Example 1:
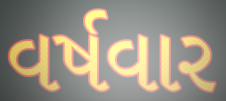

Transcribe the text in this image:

વર્ષવાર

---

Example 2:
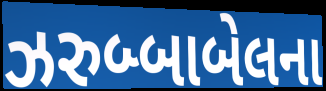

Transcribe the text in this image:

ઝરુબ્બાબેલના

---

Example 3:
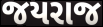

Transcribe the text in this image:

જયરાજ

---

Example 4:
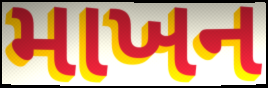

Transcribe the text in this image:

માખન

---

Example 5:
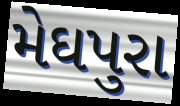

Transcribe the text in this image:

મેઘપુરા